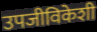
उपजीविकेशी